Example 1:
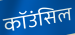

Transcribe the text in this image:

कॉउंसिल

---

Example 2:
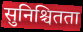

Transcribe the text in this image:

सुनिश्चितता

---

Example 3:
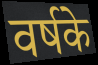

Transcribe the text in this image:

वर्षके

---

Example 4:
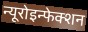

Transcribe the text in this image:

न्यूरोइन्फेक्शन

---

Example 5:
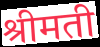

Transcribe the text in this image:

श्रीमती